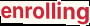
enrolling